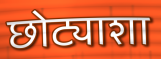
छोट्याशा